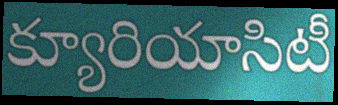
క్యూరియాసిటీ